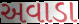
અવાડા